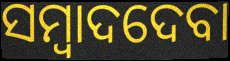
ସମ୍ବାଦଦେବା